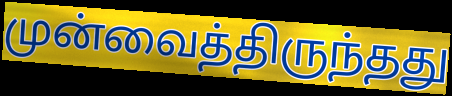
முன்வைத்திருந்தது